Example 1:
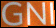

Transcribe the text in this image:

GNI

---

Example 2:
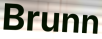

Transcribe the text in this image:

Brunn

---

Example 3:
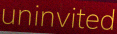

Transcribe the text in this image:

uninvited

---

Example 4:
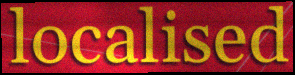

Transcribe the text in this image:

localised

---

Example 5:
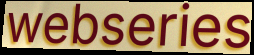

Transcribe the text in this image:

webseries